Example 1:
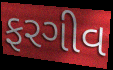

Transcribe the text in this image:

ફરગીવ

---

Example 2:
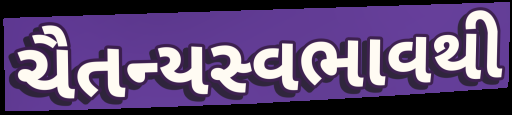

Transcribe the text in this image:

ચૈતન્યસ્વભાવથી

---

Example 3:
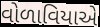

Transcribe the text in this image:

વોળાવિયાએ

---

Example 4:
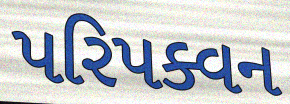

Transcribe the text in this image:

પરિપક્વન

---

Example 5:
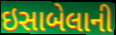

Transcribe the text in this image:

ઇસાબેલાની